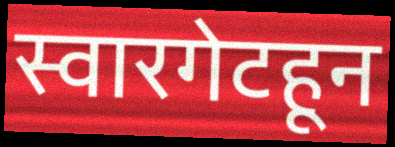
स्वारगेटहून